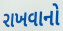
રાખવાનો